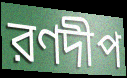
রণদীপ